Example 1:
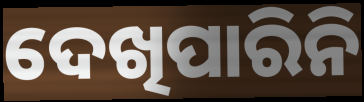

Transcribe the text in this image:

ଦେଖିପାରିନି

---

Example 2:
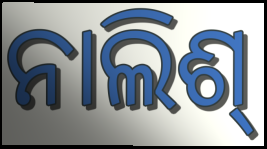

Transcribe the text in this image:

ନାଲିଶ୍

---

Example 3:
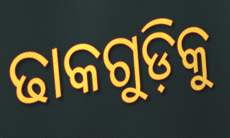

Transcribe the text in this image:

ଢାକଗୁଡ଼ିକୁ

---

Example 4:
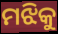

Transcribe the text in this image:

ମଝିକୁ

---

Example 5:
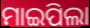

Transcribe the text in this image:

ମାଇପିଲା